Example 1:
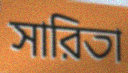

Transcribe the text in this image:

সারিতা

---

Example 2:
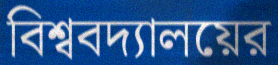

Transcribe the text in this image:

বিশ্ববদ্যালয়ের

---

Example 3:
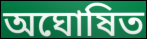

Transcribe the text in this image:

অঘোষিত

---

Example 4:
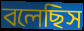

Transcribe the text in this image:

বলেছিস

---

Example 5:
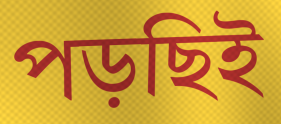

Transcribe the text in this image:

পড়ছিই